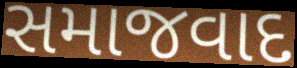
સમાજવાદ